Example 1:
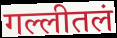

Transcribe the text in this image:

गल्लीतलं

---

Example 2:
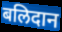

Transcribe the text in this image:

बलिदान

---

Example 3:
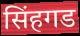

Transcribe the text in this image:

सिंहगड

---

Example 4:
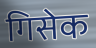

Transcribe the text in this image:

गिसेक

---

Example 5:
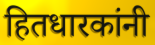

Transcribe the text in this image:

हितधारकांनी